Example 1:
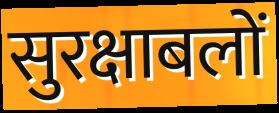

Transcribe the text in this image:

सुरक्षाबलों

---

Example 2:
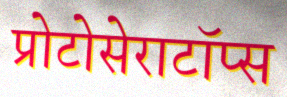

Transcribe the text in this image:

प्रोटोसेराटॉप्स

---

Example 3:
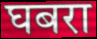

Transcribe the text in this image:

घबरा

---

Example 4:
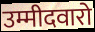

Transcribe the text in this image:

उम्मीदवारो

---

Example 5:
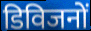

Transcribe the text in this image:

डिविजनों